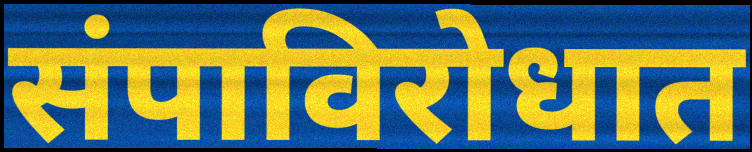
संपाविरोधात